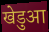
खेड़ुआ